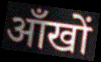
आँखों